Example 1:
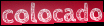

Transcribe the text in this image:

colocado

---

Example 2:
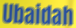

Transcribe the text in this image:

Ubaidah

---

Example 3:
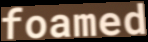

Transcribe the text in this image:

foamed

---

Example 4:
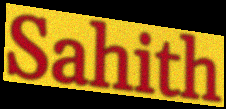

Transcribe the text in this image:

Sahith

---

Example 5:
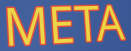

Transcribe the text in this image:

META